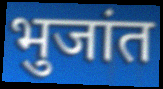
भुजांत